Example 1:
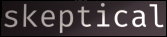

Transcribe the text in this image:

skeptical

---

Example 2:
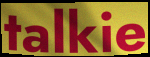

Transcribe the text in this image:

talkie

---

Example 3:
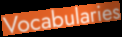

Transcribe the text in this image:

Vocabularies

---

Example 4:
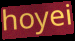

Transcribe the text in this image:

hoyei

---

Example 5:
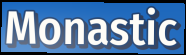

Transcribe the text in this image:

Monastic